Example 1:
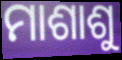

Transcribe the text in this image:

ମାଶାଶୁ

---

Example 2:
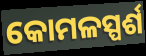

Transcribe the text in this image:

କୋମଳସ୍ପର୍ଶ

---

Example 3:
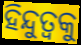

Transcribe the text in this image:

ହିନ୍ଦୁତ୍ୱକୁ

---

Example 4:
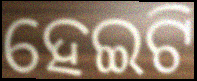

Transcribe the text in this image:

ହେଇଟି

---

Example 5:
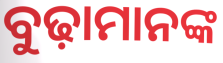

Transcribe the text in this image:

ବୁଢ଼ାମାନଙ୍କ